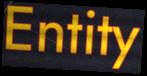
Entity